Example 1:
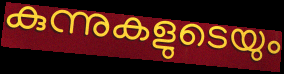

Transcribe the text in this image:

കുന്നുകളുടെയും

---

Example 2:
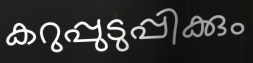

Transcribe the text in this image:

കറുപ്പുടുപ്പിക്കും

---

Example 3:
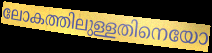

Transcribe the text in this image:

ലോകത്തിലുള്ളതിനെയോ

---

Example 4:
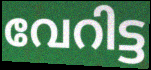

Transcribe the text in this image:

വേറിട്ട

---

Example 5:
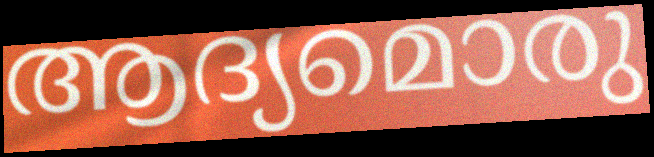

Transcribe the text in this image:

ആദ്യമൊരു